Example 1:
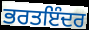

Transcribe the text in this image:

ਭਰਤਇੰਦਰ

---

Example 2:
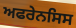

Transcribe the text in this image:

ਅਫਰੇਨਸਿਸ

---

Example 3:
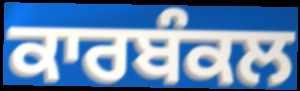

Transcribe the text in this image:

ਕਾਰਬੰਕਲ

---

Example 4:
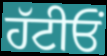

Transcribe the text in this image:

ਹੱਟੀਓਂ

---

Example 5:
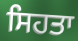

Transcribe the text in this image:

ਸਿਹਤਾ